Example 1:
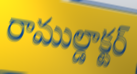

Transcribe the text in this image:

రాముల్డాక్టర్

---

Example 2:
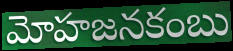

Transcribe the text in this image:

మోహజనకంబు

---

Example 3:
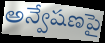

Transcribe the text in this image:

అన్వేషణపై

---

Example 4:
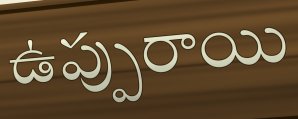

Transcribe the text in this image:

ఉప్పురాయి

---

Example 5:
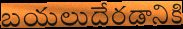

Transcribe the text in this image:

బయలుదేరడానికి